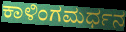
ಕಾಳಿಂಗಮರ್ಧನ